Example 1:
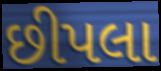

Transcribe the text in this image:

છીપલા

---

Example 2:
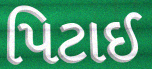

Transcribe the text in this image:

પિટાઈ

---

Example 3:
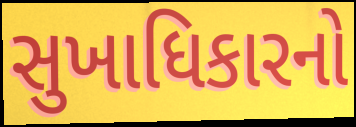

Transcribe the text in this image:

સુખાધિકારનો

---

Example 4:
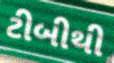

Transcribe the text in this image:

ટીબીથી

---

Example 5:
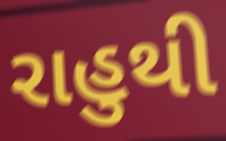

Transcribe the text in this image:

રાહુથી